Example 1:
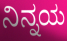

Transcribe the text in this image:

ನಿನ್ನಯ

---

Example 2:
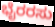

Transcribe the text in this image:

ಭೈರರಸು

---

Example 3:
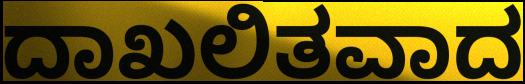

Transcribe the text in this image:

ದಾಖಲಿತವಾದ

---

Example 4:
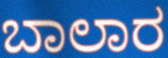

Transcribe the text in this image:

ಬಾಲಾರ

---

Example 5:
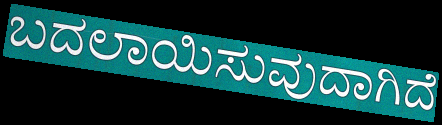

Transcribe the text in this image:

ಬದಲಾಯಿಸುವುದಾಗಿದೆ